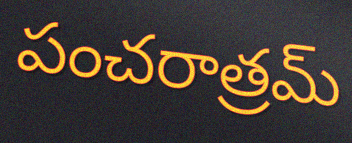
పంచరాత్రమ్